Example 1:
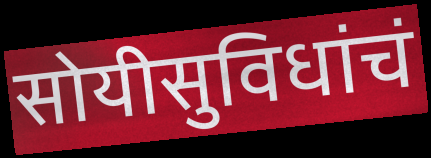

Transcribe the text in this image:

सोयीसुविधांचं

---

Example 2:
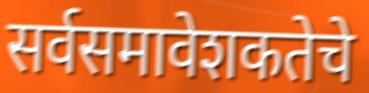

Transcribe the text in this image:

सर्वसमावेशकतेचे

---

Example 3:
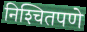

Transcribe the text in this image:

निश्‍चितपणे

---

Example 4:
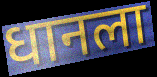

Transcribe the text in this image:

धानला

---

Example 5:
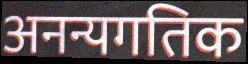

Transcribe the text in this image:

अनन्यगतिक